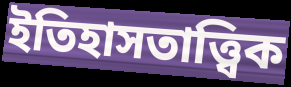
ইতিহাসতাত্ত্বিক